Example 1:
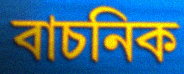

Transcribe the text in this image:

বাচনিক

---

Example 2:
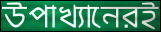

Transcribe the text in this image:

উপাখ্যানেরই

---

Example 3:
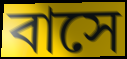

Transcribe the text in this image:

বাসে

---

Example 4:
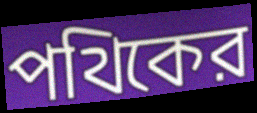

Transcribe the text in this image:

পথিকের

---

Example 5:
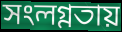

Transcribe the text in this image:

সংলগ্নতায়